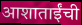
आशाताईंची